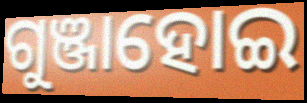
ଗୁଞ୍ଜାହୋଇ